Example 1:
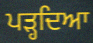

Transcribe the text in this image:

ਪੜ੍ਹਦਿਆ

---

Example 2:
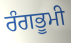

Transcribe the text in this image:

ਰੰਗਭੂਮੀ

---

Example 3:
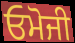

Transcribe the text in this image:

ਓਮੋਜੀ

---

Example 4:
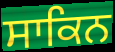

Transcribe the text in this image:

ਸਾਕਿਨ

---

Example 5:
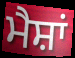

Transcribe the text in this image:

ਮੈਸ਼ਾਂ